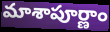
మాశాపూర్ణాం